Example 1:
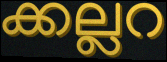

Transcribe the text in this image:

ക്കല്ലറ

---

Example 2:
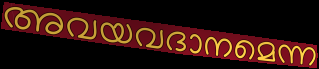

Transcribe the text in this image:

അവയവദാനമെന്ന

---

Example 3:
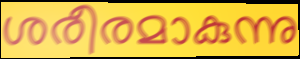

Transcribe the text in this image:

ശരീരമാകുന്നു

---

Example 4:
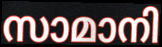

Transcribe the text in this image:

സാമാനി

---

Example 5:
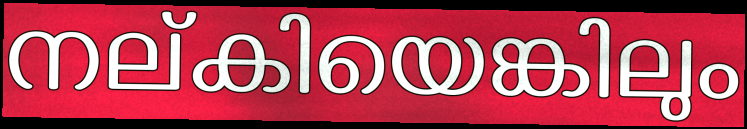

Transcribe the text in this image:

നല്‌കിയെങ്കിലും